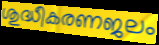
ശുദ്ധീകരണജലം